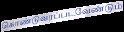
கொண்டுவரப்படவேண்டும்